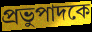
প্রভুপাদকে